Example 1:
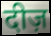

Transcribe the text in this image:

दीज़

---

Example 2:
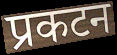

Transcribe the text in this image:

प्रकटन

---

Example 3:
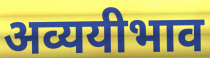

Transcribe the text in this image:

अव्ययीभाव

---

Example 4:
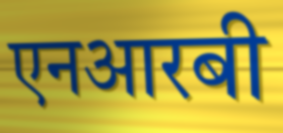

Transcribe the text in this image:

एनआरबी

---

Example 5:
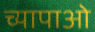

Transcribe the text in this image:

च्यापाओ